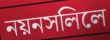
নয়নসলিলে